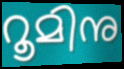
റൂമിനു